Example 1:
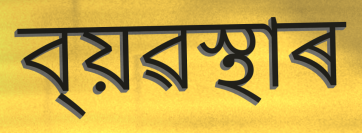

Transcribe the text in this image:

ব্য়ৱস্থাৰ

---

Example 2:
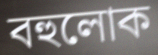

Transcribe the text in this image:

বহুলোক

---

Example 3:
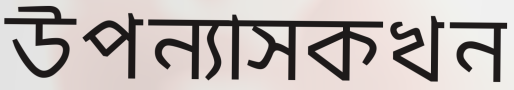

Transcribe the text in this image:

উপন্যাসকখন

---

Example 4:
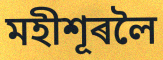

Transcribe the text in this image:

মহীশূৰলৈ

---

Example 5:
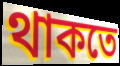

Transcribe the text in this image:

থাকতে